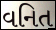
વનિત